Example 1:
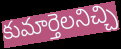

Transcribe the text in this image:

కుమార్తెలనిచ్చి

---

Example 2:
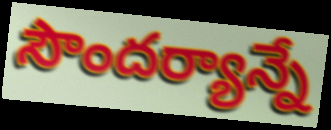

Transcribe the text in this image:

సౌందర్యాన్నే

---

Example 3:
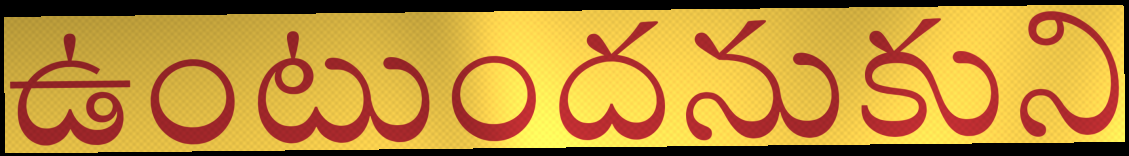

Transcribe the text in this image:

ఉంటుందనుకుని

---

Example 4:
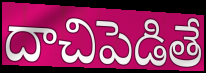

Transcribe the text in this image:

దాచిపెడితే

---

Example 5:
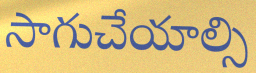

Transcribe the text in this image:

సాగుచేయాల్సి